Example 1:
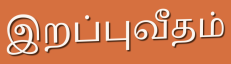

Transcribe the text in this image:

இறப்புவீதம்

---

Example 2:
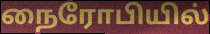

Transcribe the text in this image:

நைரோபியில்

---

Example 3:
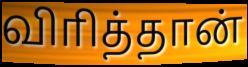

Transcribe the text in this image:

விரித்தான்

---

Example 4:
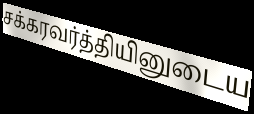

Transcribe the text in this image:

சக்கரவர்த்தியினுடைய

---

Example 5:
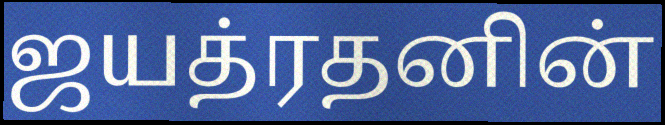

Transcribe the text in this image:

ஜயத்ரதனின்